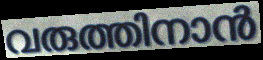
വരുത്തിനാൻ